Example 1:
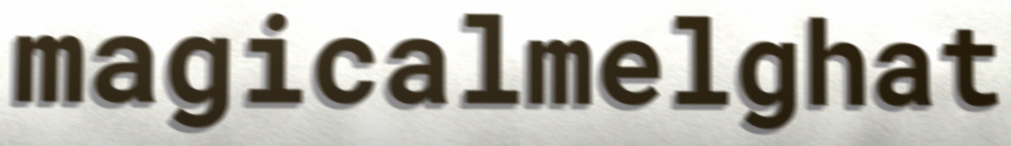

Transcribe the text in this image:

magicalmelghat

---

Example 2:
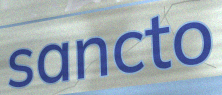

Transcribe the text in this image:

sancto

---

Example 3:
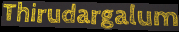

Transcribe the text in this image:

Thirudargalum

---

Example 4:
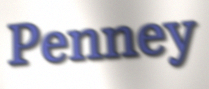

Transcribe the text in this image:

Penney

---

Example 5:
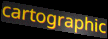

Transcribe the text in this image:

cartographic